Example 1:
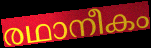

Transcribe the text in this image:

രഥാനീകം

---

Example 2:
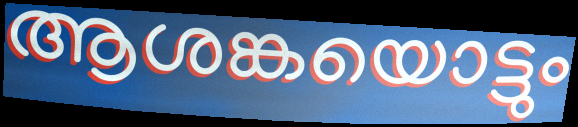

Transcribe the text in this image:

ആശങ്കയൊട്ടും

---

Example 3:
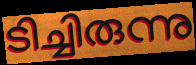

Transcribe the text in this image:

ടിച്ചിരുന്നു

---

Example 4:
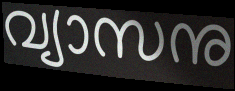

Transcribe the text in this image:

വ്യാസനു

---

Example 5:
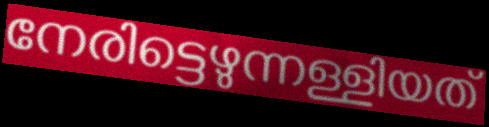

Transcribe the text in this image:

നേരിട്ടെഴുന്നള്ളിയത്